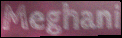
Meghani